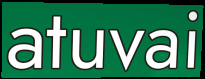
atuvai